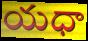
యధా